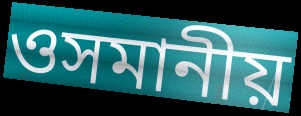
ওসমানীয়